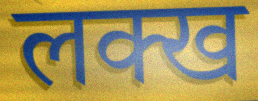
लक्ख